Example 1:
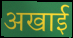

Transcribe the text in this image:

अखाई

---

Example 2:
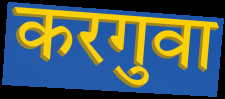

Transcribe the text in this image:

करगुवा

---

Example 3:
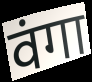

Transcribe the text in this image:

वंगा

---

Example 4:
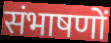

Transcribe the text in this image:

संभाषणों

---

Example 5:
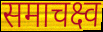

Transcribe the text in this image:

समाचक्ष्व